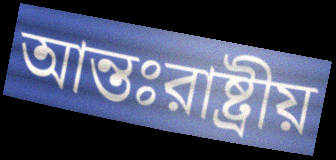
আন্তঃরাষ্ট্রীয়